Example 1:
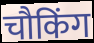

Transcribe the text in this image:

चौकिंग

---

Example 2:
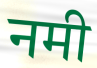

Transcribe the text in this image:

नमी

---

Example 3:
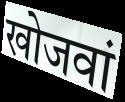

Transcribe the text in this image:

खोजवां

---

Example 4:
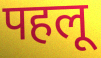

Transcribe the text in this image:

पहलू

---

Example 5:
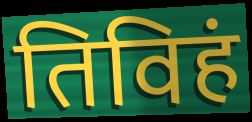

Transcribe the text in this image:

तिविहं